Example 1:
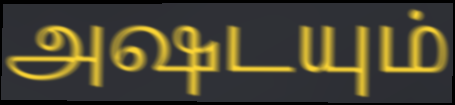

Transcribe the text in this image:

அஷடயும்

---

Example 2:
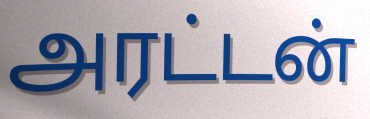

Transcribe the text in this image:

அரட்டன்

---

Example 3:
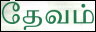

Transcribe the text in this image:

தேவம்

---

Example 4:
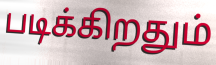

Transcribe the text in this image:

படிக்கிறதும்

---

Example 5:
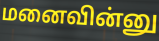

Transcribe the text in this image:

மனைவின்னு